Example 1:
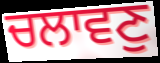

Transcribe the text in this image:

ਚਲਾਵਣੁ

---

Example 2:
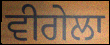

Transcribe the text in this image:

ਵੀਗੇਲਾ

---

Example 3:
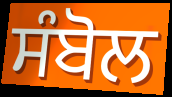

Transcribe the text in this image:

ਸੰਬੋਲ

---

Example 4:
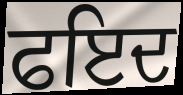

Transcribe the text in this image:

ਫਇਦ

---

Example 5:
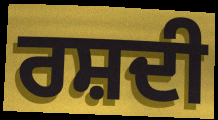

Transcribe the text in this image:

ਰਸ਼ਦੀ